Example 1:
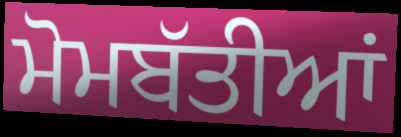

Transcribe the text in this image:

ਮੋਮਬੱਤੀਆਂ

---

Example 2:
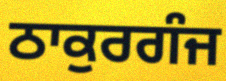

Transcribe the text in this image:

ਠਾਕੁਰਗੰਜ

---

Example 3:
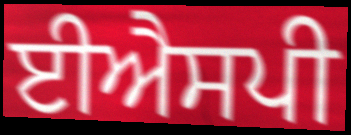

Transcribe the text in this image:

ਈਐਸਪੀ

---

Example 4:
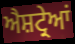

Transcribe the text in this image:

ਐਸ਼ਟ੍ਰੇਆਂ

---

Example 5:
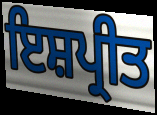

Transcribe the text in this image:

ਇਸ਼ਪ੍ਰੀਤ